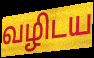
வழிடய